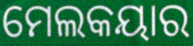
ମେଲକୟାର